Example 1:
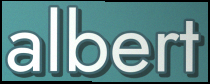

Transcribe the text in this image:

albert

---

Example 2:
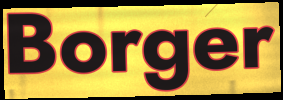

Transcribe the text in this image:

Borger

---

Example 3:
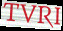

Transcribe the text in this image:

TVRI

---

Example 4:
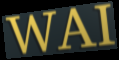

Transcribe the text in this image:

WAI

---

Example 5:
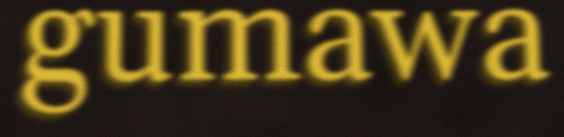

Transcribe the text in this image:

gumawa